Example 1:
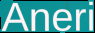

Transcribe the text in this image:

Aneri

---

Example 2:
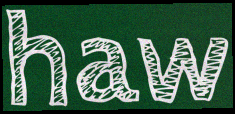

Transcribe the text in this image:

haw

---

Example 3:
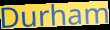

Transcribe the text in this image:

Durham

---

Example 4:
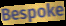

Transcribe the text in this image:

Bespoke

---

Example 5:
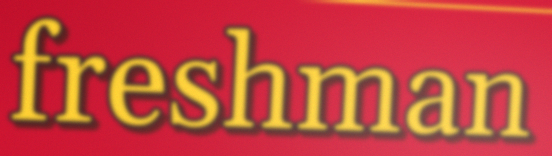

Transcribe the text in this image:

freshman